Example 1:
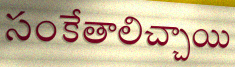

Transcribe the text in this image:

సంకేతాలిచ్చాయి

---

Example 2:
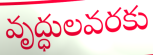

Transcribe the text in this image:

వృద్ధులవరకు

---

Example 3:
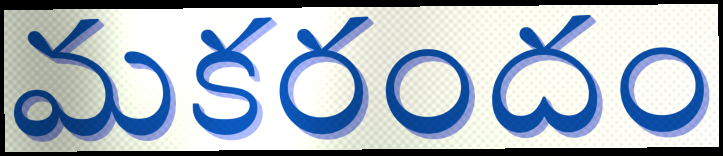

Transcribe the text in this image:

మకరందం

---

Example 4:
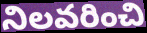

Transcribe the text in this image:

నిలవరించి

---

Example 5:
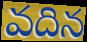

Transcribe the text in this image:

వదిన